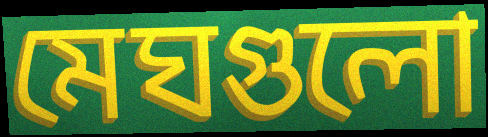
মেঘগুলো